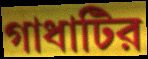
গাধাটির